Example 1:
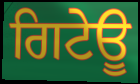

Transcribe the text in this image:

ਗਿਟੇਊ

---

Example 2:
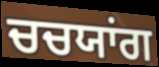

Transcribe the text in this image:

ਚਚਯਾਂਗ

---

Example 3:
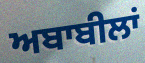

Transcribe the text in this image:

ਅਬਾਬੀਲਾਂ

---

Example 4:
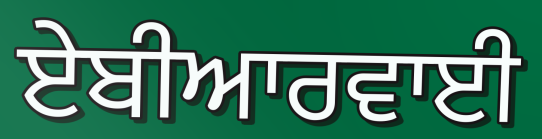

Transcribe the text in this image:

ਏਬੀਆਰਵਾਈ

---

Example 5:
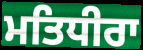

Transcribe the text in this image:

ਮਤਿਧੀਰਾ